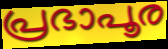
പ്രഭാപൂര